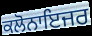
ਕਲੋਨਾਇਜਰ